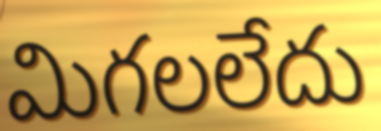
మిగలలేదు